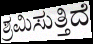
ಶ್ರಮಿಸುತ್ತಿದೆ